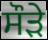
ਸੌੜੇ